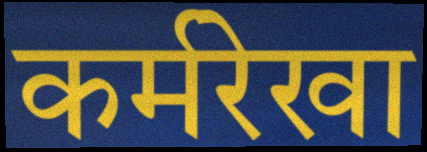
कर्मरेखा